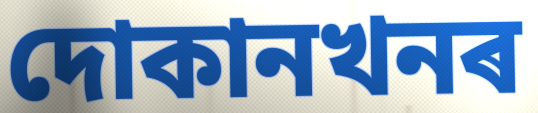
দোকানখনৰ